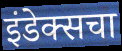
इंडेक्सचा